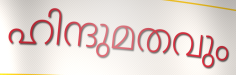
ഹിന്ദുമതവും